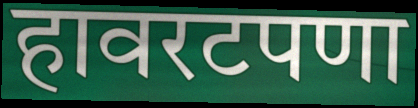
हावरटपणा